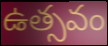
ఉత్సవం